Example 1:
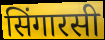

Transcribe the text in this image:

सिंगारसी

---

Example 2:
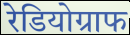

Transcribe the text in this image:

रेडियोग्राफ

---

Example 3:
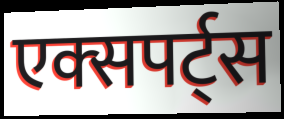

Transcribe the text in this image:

एक्‍सपर्ट्स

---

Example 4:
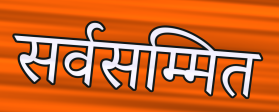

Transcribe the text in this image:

सर्वसम्मित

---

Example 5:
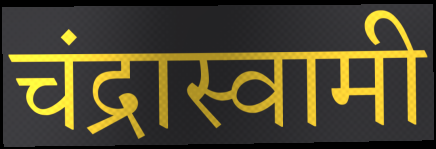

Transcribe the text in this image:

चंद्रास्वामी